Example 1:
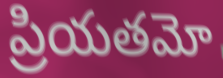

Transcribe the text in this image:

ప్రియతమో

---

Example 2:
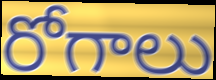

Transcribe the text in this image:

రోగాలు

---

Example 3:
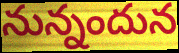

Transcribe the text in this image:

నున్నందున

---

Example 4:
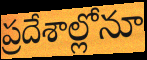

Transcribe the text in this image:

ప్రదేశాల్లోనూ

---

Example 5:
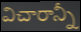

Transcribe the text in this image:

విచారాన్నీ